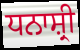
ਧਨਾਸ਼੍ਰੀ